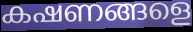
കഷണങ്ങളെ